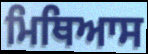
ਮਿਥਿਆਸ